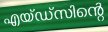
എയ്ഡ്സിന്റെ